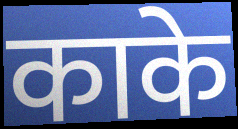
काके